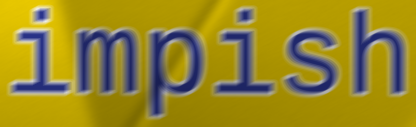
impish